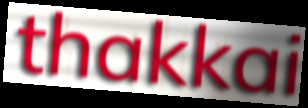
thakkai